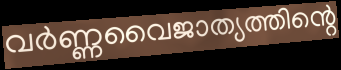
വർണ്ണവൈജാത്യത്തിന്റെ